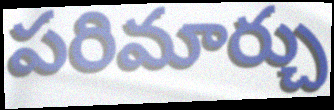
పరిమార్చు